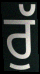
ਰੁੱ